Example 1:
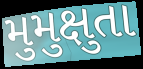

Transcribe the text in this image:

મુમુક્ષુતા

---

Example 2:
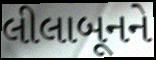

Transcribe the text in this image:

લીલાબૂનને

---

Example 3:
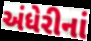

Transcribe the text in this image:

અંધેરીનાં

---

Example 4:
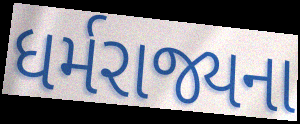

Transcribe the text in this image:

ધર્મરાજ્યના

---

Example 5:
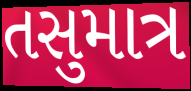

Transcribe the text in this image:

તસુમાત્ર